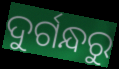
ଦୁର୍ଗନ୍ଧରୁ